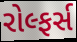
રોલ્ફર્સ